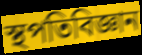
স্থপতিবিজ্ঞান